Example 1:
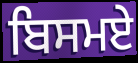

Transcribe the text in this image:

ਬਿਸਮਏ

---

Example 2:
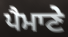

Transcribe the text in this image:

ਪੈਮਾਣੇ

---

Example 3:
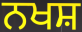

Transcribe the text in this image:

ਨਖਸ਼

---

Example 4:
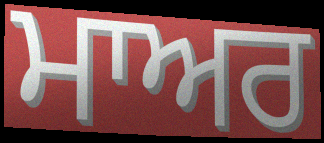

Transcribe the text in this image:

ਮਾਅਰ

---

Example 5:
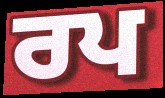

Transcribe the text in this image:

ਰਪ